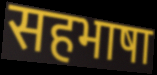
सहभाषा